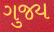
ગુજ્ય